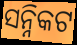
ସନ୍ନିକଟ